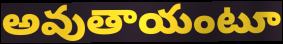
అవుతాయంటూ